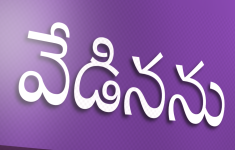
వేడినను